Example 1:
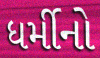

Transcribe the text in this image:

ધર્મીનો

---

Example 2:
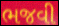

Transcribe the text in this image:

ભજવી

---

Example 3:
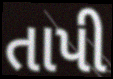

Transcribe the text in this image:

તાપી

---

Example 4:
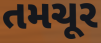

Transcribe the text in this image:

તમચૂર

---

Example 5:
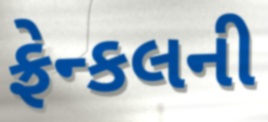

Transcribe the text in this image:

ફ્રેન્કલની